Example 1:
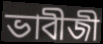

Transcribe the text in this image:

ভাবীজী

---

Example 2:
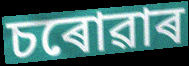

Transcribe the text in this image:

চৰোৱাৰ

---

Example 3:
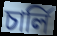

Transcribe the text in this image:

চাৰ্লি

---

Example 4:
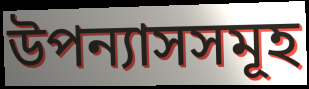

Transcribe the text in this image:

উপন্যাসসমূহ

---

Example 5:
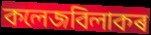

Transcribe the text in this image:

কলেজবিলাকৰ